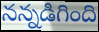
నన్నడిగింది